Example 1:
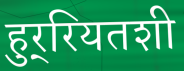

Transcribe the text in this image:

हुर्रियतशी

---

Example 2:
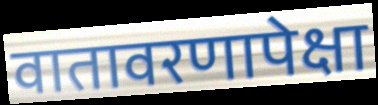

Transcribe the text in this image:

वातावरणापेक्षा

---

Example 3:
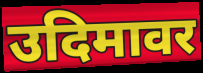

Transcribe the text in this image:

उदिमावर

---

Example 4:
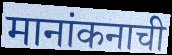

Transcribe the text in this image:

मानांकनाची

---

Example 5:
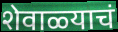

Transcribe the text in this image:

शेवाळ्याचं